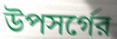
উপসর্গের